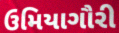
ઉમિયાગૌરી